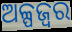
ଅଳ୍ପଜ୍ଵର